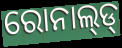
ରୋନାଲ୍‌ଡ୍